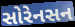
સોરેનસન